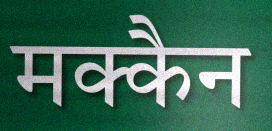
मक्कैन